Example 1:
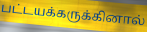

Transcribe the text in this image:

பட்டயக்கருக்கினால்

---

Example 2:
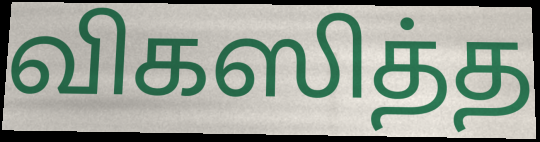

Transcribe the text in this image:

விகஸித்த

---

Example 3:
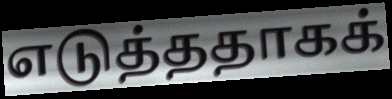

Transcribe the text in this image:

எடுத்ததாகக்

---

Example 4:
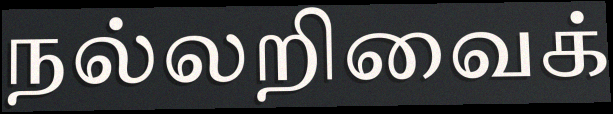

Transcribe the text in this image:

நல்லறிவைக்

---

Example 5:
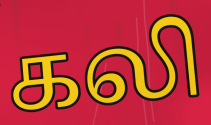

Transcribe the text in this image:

கலி